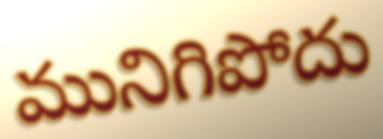
మునిగిపోదు